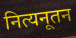
नित्यनूतन